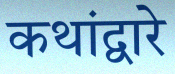
कथांद्वारे